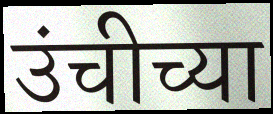
उंचीच्या